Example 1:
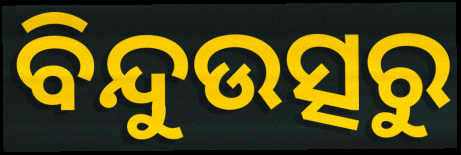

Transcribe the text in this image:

ବିନ୍ଦୁଉତ୍ସରୁ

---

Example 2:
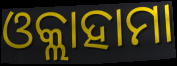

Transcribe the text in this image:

ଓକ୍ଲାହାମା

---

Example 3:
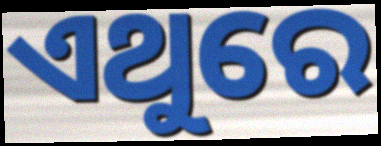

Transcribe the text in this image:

ଏଥୁରେ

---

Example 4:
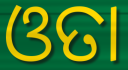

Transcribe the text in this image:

ଓତା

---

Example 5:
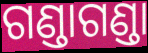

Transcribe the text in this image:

ଗଣ୍ଡାଗଣ୍ଡା